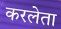
करलेता